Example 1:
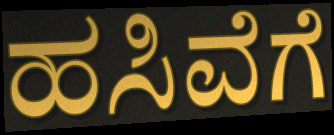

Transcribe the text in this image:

ಹಸಿವೆಗೆ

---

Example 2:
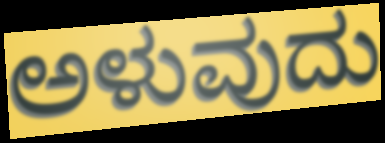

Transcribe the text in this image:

ಅಳುವುದು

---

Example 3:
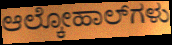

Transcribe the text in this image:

ಆಲ್ಕೋಹಾಲ್‌ಗಳು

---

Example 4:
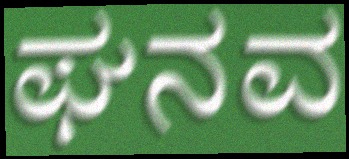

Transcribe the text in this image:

ಘನವ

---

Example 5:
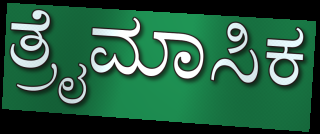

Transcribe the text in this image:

ತ್ರೈಮಾಸಿಕ